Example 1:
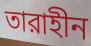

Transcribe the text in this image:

তারাহীন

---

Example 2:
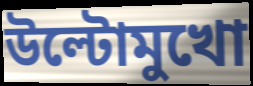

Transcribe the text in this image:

উল্টোমুখো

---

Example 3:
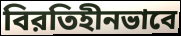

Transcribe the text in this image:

বিরতিহীনভাবে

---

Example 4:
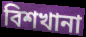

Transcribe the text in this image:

বিশখানা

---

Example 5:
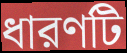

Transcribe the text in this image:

ধারণটি